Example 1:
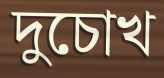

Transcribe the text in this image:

দুচোখ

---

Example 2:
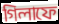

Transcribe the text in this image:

গিলাফে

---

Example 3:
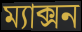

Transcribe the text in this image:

ম্যাক্সন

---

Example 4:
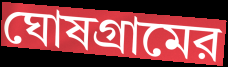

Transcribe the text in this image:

ঘোষগ্রামের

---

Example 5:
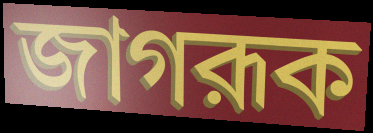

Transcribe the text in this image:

জাগরূক